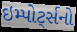
ઇમ્પોર્ટ્સનો